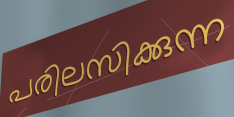
പരിലസിക്കുന്ന